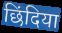
छिंदिया